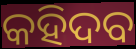
କହିଦବ